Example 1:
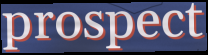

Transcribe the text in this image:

prospect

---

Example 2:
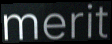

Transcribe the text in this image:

merit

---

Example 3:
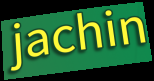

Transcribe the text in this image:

jachin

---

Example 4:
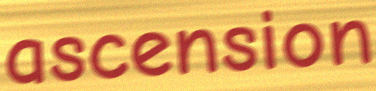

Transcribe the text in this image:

ascension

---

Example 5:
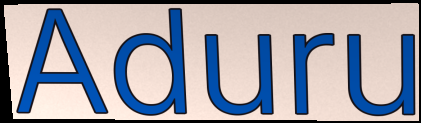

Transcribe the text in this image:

Aduru